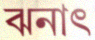
ঝনাৎ